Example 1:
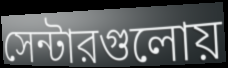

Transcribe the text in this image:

সেন্টারগুলোয়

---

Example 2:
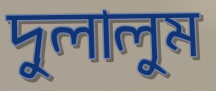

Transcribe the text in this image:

দুলালুম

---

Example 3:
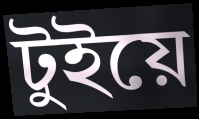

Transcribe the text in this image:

টুইয়ে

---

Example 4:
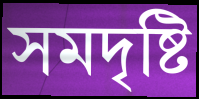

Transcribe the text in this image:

সমদৃষ্টি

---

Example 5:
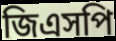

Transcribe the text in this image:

জিএসপি